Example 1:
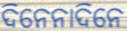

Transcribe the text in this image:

ଦିନେନାଦିନେ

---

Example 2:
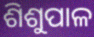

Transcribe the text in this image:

ଶିଶୁପାଳ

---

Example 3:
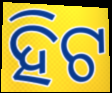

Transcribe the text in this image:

ହିଟ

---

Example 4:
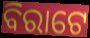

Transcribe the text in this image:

ବିରାଟେ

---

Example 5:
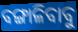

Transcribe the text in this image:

ବଙ୍ଗାଳିବାବୁ